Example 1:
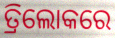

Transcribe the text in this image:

ତ୍ରିଲୋକରେ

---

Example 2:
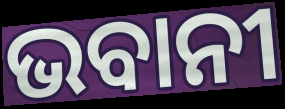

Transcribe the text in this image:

ଭବାନୀ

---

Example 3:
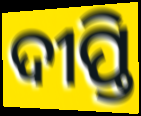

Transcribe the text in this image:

ଦୀପ୍ତି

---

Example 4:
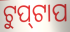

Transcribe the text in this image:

ଟୁପ୍‌ଟାପ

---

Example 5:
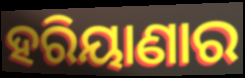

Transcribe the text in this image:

ହରିୟାଣାର